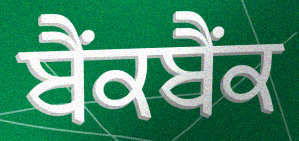
ਬੈਂਕਬੈਂਕ